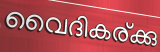
വൈദികര്ക്കു